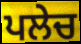
ਪਲੇਚ